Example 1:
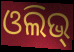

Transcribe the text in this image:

ଓଲିଭ୍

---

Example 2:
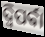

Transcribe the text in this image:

ଦ୍ଵିପର୍ବା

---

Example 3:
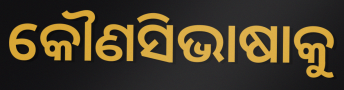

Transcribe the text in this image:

କୌଣସିଭାଷାକୁ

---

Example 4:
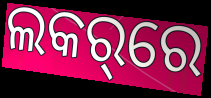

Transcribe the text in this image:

ଲକର୍‌ରେ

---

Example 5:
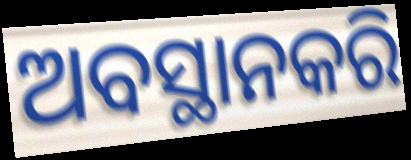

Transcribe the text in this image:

ଅବସ୍ଥାନକରି